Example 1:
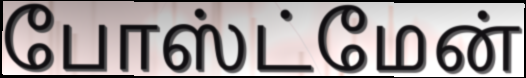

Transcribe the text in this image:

போஸ்ட்மேன்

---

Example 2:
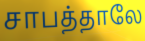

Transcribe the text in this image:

சாபத்தாலே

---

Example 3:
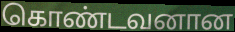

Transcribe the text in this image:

கொண்டவனான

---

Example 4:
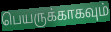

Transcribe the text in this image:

பெயருக்காகவும்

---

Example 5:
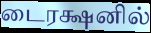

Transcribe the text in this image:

டைரக்ஷனில்